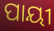
ପାୟୀ